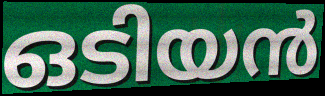
ഒടിയൻ